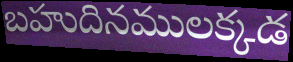
బహుదినములక్కడ